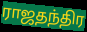
ராஜதந்திர